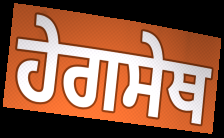
ਹੇਗਸੇਥ